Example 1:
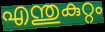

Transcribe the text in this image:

എന്തുകുറ്റം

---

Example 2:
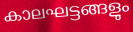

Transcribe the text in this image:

കാലഘട്ടങ്ങളും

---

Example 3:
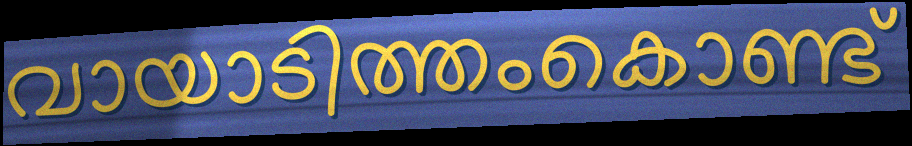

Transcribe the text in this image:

വായാടിത്തംകൊണ്ട്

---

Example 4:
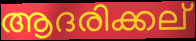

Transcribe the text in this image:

ആദരിക്കല്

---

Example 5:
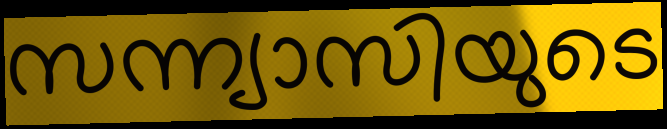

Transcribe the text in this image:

സന്ന്യാസിയുടെ